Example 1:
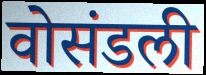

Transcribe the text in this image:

वोसंडली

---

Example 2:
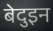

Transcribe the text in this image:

बेदुइन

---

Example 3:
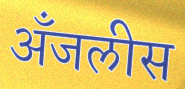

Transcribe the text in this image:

अँजलीस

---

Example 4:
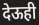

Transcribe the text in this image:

देऊही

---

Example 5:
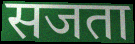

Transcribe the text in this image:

सजता